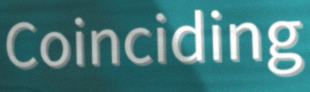
Coinciding